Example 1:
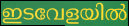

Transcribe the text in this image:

ഇടവേളയിൽ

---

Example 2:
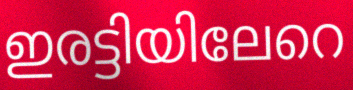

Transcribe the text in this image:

ഇരട്ടിയിലേറെ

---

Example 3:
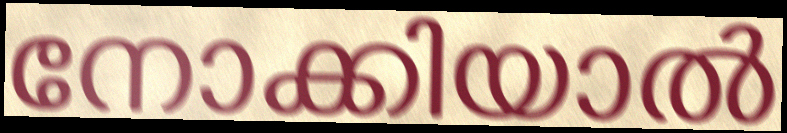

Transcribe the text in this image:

നോക്കിയാൽ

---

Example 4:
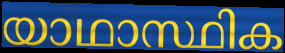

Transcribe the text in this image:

യാഥാസ്ഥിക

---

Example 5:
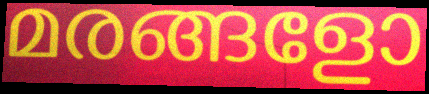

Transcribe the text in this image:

മരങ്ങളോ